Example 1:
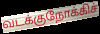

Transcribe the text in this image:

வடக்குநோக்கிச்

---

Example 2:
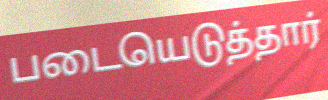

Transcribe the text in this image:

படையெடுத்தார்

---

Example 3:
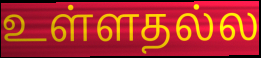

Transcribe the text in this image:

உள்ளதல்ல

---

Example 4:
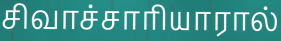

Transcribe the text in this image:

சிவாச்சாரியாரால்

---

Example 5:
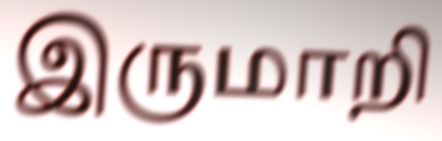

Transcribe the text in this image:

இருமாறி